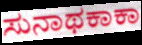
ಸುನಾಥಕಾಕಾ